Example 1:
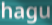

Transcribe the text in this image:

hagu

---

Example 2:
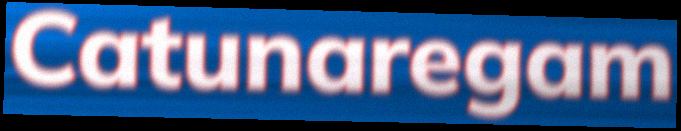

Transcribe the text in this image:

Catunaregam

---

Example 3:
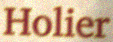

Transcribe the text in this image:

Holier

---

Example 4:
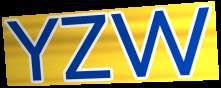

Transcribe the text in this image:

YZW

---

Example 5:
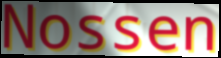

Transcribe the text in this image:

Nossen